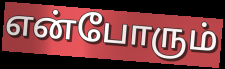
என்போரும்